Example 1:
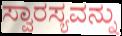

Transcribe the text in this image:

ಸ್ವಾರಸ್ಯವನ್ನು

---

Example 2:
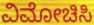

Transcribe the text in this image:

ವಿಮೋಚಿಸಿ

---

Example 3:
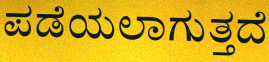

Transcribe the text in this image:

ಪಡೆಯಲಾಗುತ್ತದೆ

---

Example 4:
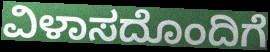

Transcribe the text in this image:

ವಿಳಾಸದೊಂದಿಗೆ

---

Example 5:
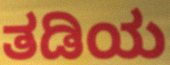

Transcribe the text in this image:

ತಡಿಯ